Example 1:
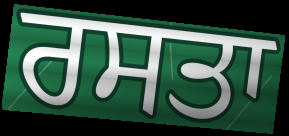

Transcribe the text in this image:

ਰਸਤਾ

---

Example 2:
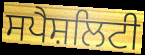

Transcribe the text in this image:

ਸਪੈਸ਼ਲਿਟੀ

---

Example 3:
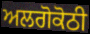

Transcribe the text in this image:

ਅਲਗੋਕੋਠੀ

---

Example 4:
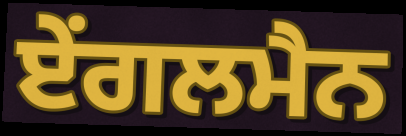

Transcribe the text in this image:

ਏਂਗਲਮੈਨ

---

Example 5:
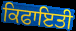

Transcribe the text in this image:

ਕਿਫਾਇਤੀ